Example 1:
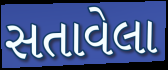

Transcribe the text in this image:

સતાવેલા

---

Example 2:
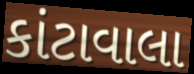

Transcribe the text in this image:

કાંટાવાલા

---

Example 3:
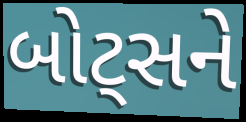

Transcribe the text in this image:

બોટ્સને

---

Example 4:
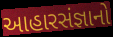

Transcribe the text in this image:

આહારસંજ્ઞાનો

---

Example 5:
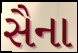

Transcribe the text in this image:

સૈના